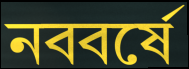
নববর্ষে